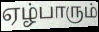
ஏழ்பாரும்